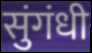
सुंगंधी